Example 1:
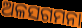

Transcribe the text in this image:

ଅଳସଗମନା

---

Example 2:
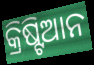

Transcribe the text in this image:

କ୍ରିଷ୍ଟିଆନ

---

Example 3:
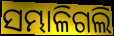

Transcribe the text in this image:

ସମ୍ଭାଳିଗଲି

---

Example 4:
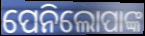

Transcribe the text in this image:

ପେନିଲୋପାଙ୍କ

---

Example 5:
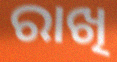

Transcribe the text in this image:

ରାଖି